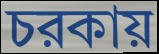
চরকায়